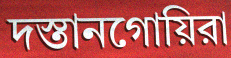
দস্তানগোয়িরা